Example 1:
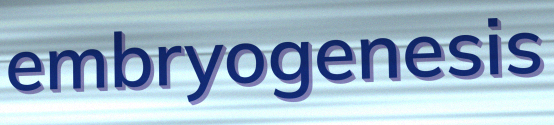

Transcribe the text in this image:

embryogenesis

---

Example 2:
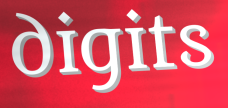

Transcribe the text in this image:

digits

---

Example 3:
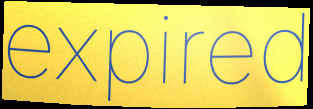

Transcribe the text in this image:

expired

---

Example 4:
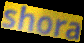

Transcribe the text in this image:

shora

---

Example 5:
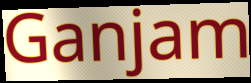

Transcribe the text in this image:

Ganjam